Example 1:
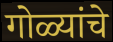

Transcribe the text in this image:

गोळ्यांचे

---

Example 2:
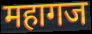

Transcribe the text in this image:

महागज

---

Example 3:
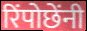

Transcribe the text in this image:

रिंपोछेंनी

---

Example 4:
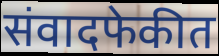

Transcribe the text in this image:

संवादफेकीत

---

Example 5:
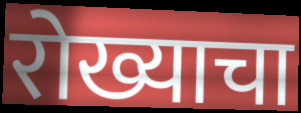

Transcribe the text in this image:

रोख्याचा